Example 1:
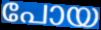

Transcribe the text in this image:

പോയ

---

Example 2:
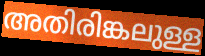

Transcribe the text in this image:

അതിരിങ്കലുള്ള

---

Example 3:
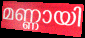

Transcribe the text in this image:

മണ്ണായി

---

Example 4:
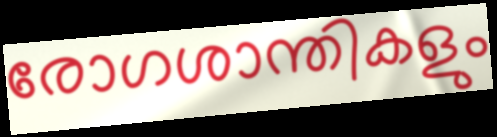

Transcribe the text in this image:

രോഗശാന്തികളും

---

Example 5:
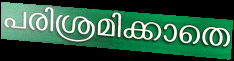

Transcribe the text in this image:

പരിശ്രമിക്കാതെ